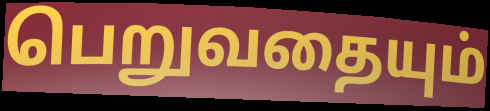
பெறுவதையும்